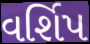
વર્શિપ